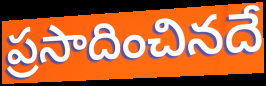
ప్రసాదించినదే